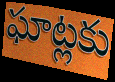
ఘాట్లకు